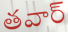
తవార్